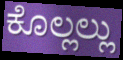
ಕೊಲ್ಲಲ್ಲು